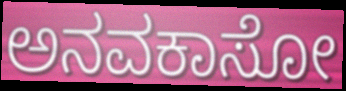
ಅನವಕಾಸೋ